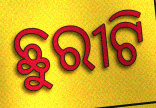
ଛୁରୀଟି